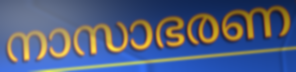
നാസാഭരണ